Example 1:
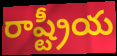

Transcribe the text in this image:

రాష్ట్రీయ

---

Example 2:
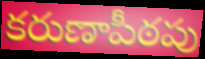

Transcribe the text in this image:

కరుణాపీఠపు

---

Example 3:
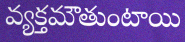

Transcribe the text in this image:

వ్యక్తమౌతుంటాయి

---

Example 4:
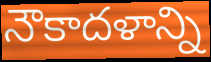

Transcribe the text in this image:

నౌకాదళాన్ని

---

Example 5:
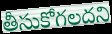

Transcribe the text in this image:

తీసుకోగలదని